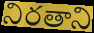
నిరతాని